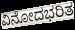
ವಿನೋದಭರಿತ